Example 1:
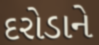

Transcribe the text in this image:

દરોડાને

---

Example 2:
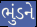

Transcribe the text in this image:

ભુંડને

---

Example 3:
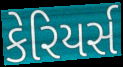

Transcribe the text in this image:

કેરિયર્સ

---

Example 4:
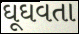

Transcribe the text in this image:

ઘૂઘવતા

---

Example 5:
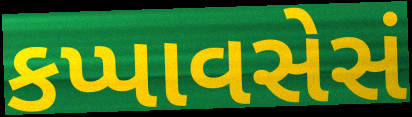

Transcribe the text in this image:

કપ્પાવસેસં